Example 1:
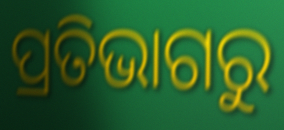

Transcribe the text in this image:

ପ୍ରତିଭାଗରୁ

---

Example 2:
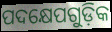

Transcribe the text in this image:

ପଦକ୍ଷେପଗୁଡ଼ିକ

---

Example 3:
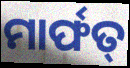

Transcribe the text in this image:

ମାର୍ଫତ୍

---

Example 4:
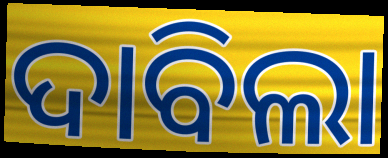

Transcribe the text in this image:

ଦାବିଲା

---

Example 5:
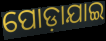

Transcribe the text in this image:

ପୋଡ଼ାଯାଇ